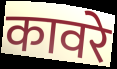
कावरे